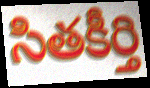
సితకీర్తి